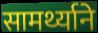
सामर्थ्याने